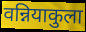
वन्नियाकुला